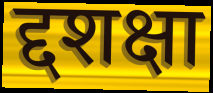
द्दशक्षा